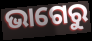
ଭାଗେରୁ